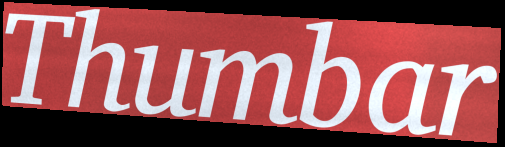
Thumbar